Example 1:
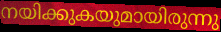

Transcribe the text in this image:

നയിക്കുകയുമായിരുന്നു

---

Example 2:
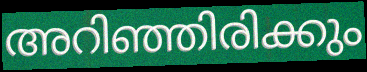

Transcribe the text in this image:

അറിഞ്ഞിരിക്കും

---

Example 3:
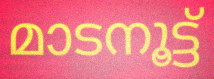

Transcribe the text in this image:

മാടനൂട്ട്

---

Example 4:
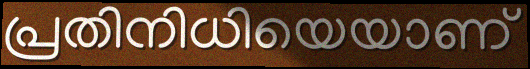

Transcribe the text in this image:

പ്രതിനിധിയെയാണ്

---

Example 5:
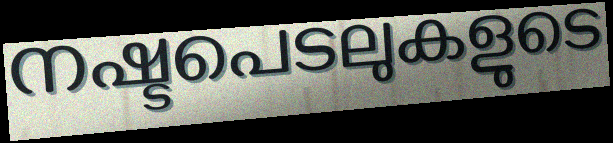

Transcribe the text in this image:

നഷ്ടപെടലുകളുടെ